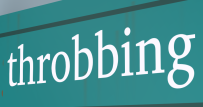
throbbing